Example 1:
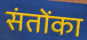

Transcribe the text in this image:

संतोंका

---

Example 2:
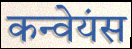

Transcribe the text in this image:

कन्वेयंस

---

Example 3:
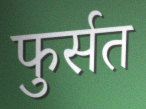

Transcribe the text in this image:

फुर्सत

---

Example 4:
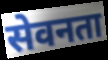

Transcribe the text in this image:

सेवनता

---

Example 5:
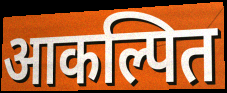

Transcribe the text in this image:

आकल्पित